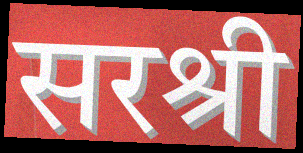
सरश्री